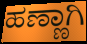
ಹಣ್ಣಾಗಿ